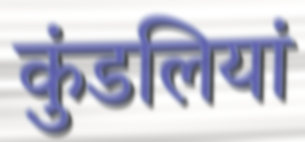
कुंडलियां